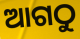
ଆଗଠୁ